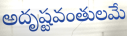
అదృష్టవంతులమే